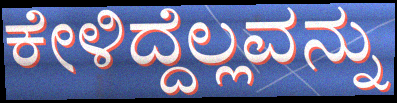
ಕೇಳಿದ್ದೆಲ್ಲವನ್ನು